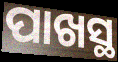
ପାଖସ୍ଥ